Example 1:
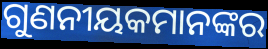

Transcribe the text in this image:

ଗୁଣନୀୟକମାନଙ୍କର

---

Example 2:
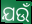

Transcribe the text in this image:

ଯଉଁ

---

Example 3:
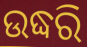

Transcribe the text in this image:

ଉଦ୍ଧରି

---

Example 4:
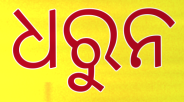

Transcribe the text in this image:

ଧରୁନ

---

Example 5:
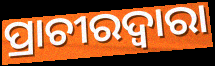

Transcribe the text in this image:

ପ୍ରାଚୀରଦ୍ୱାରା